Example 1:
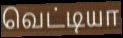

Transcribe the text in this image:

வெட்டியா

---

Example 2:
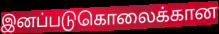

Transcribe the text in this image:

இனப்படுகொலைக்கான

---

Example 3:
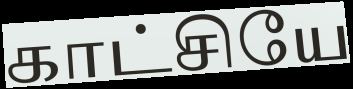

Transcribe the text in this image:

காட்சியே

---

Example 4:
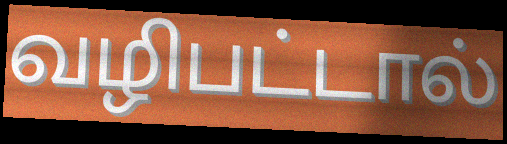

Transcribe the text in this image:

வழிபட்டால்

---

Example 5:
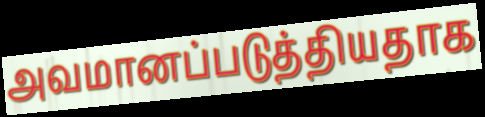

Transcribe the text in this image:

அவமானப்படுத்தியதாக